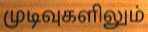
முடிவுகளிலும்